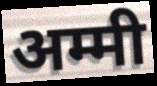
अम्मी